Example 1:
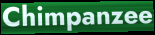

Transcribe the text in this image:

Chimpanzee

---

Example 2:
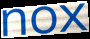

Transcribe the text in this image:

nox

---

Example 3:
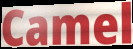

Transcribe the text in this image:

Camel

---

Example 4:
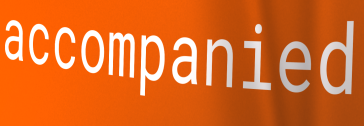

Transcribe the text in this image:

accompanied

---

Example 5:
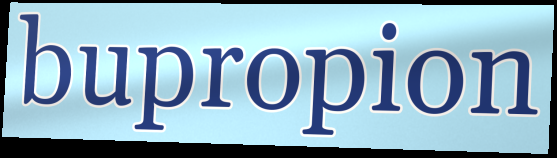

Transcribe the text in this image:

bupropion